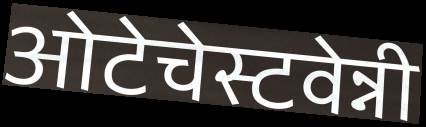
ओटेचेस्टवेन्नी